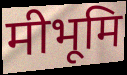
मीभूमि